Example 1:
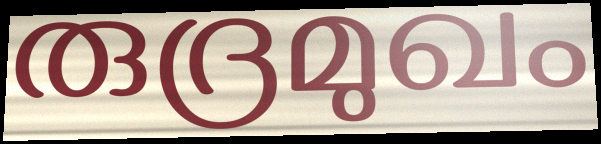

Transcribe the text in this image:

രുദ്രമുഖം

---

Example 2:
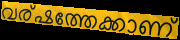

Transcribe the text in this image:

വര്ഷത്തേക്കാണ്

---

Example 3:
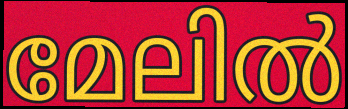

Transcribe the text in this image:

മേലിൽ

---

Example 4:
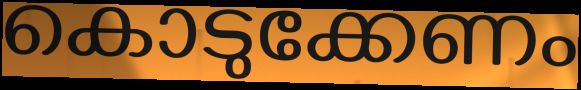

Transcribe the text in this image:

കൊടുക്കേണം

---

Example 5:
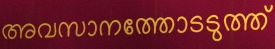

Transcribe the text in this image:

അവസാനത്തോടടുത്ത്